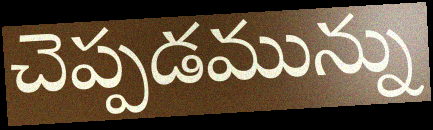
చెప్పడమున్ను